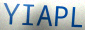
YIAPL